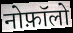
नोफ़ॉलो